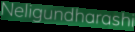
Neligundharashi